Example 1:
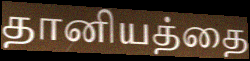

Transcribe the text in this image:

தானியத்தை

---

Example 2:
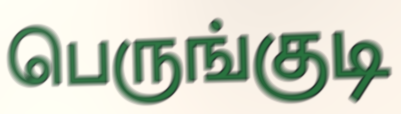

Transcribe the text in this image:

பெருங்குடி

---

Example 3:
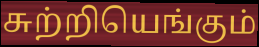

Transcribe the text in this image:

சுற்றியெங்கும்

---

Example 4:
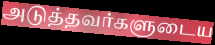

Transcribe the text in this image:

அடுத்தவர்களுடைய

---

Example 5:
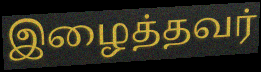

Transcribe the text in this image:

இழைத்தவர்